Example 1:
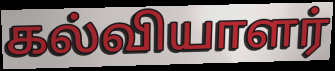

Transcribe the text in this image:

கல்வியாளர்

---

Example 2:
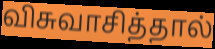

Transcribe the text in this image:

விசுவாசித்தால்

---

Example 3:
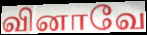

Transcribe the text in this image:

வினாவே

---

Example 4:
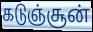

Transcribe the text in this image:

கடுஞ்சூன்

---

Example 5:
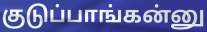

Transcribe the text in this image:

குடுப்பாங்கன்னு